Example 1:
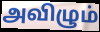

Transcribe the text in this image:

அவிழும்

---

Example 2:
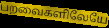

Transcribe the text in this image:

பறவைகளிலேயே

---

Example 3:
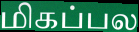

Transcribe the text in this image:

மிகப்பல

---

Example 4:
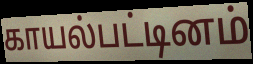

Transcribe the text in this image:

காயல்பட்டினம்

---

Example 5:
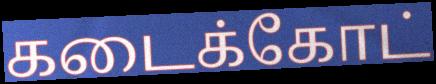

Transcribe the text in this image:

கடைக்கோட்